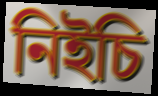
নিইচি